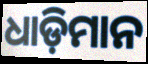
ଧାଡ଼ିମାନ